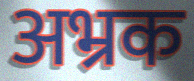
अभ्रक